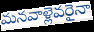
మనవాళ్లెవరైనా